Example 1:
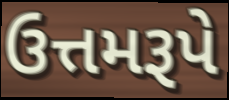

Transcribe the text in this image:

ઉત્તમરૂપે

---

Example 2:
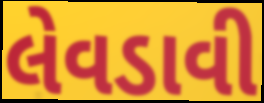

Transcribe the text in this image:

લેવડાવી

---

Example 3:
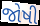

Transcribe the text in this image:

જોષી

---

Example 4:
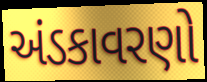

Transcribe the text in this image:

અંડકાવરણો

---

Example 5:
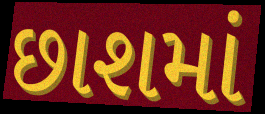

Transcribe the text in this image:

છાશમાં